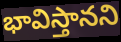
భావిస్తానని